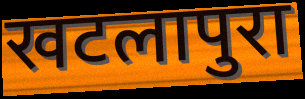
खटलापुरा